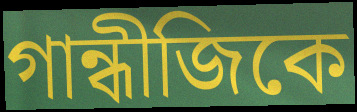
গান্ধীজিকে